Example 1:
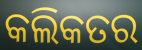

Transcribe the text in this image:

କଲିକତର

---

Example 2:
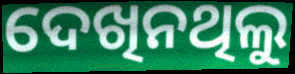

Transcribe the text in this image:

ଦେଖିନଥିଲୁ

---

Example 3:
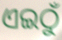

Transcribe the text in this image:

ଏଇଠୁଁ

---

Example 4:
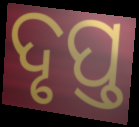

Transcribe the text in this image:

ଦୃପ୍ତ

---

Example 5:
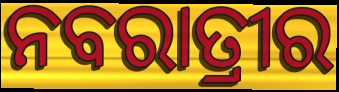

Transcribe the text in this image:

ନବରାତ୍ରୀର